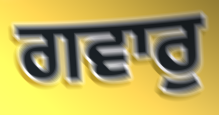
ਗਵਾਰੁ